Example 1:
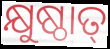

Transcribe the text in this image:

କ୍ଷୁଷ୍ଠାତ୍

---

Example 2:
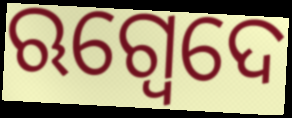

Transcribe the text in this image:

ଋଗ୍ଵେଦେ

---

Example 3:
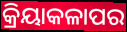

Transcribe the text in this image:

କ୍ରିୟାକଳାପର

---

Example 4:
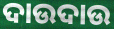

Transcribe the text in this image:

ଦାଉଦାଉ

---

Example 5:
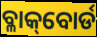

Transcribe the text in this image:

ବ୍ଳାକ୍‌ବୋର୍ଡ